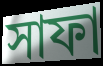
সাফা